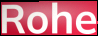
Rohe